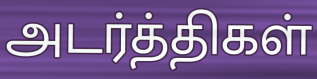
அடர்த்திகள்